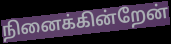
நினைக்கின்றேன்